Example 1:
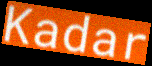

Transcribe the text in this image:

Kadar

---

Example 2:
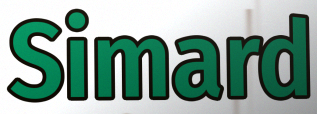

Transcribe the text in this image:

Simard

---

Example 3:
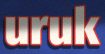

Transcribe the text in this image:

uruk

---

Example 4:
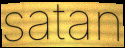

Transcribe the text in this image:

satan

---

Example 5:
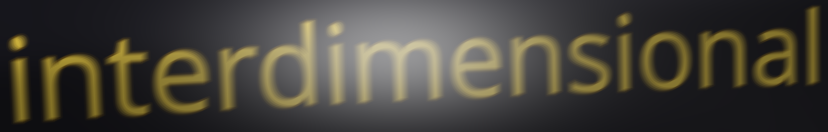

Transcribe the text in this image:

interdimensional